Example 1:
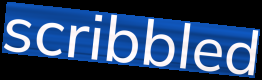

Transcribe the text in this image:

scribbled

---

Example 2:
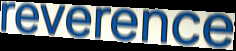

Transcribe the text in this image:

reverence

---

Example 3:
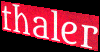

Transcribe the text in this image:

thaler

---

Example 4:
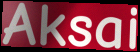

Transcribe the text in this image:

Aksai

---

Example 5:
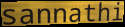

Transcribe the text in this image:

sannathi